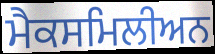
ਮੈਕਸਮਿਲੀਅਨ